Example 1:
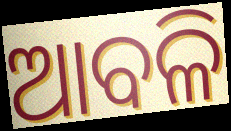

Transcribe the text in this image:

ଆବଳି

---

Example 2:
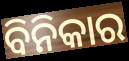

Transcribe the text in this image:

ବିନିକାର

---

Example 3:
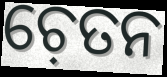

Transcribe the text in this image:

ଚ଼େତନ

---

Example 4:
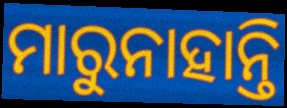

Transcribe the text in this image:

ମାରୁନାହାନ୍ତି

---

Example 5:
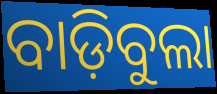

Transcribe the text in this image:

ବାଡ଼ିବୁଲା